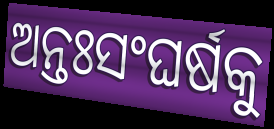
ଅନ୍ତଃସଂଘର୍ଷକୁ